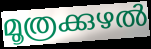
മൂത്രക്കുഴൽ